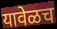
यावेळच